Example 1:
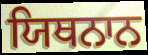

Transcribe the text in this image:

ਯਿਥਨਾਨ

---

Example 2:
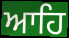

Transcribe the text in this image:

ਆਹਿ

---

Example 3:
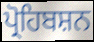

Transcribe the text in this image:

ਪ੍ਰੋਹਿਬਸ਼ਨ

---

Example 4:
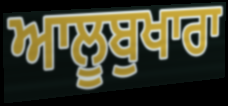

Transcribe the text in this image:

ਆਲੂਬੁਖਾਰਾ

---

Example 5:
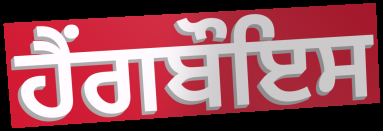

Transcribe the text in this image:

ਹੈਂਗਬੌਇਸ